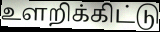
உளறிக்கிட்டு